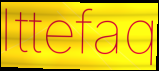
Ittefaq